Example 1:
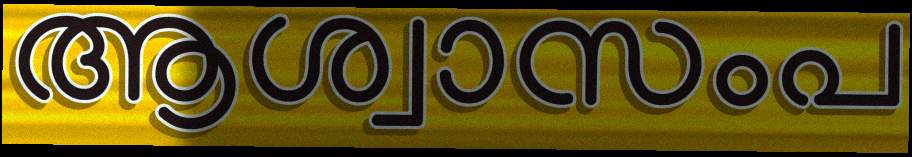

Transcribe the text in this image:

ആശ്വാസംപ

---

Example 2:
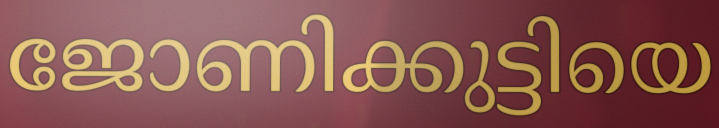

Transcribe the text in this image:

ജോണിക്കുട്ടിയെ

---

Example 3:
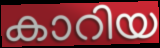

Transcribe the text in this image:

കാറിയ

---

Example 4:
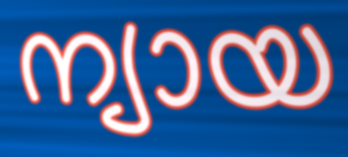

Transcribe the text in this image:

ന്യായ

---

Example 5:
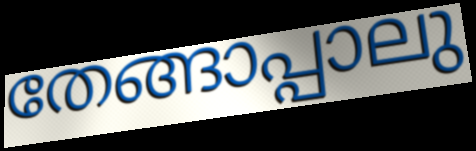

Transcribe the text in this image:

തേങ്ങാപ്പാലു